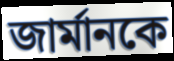
জার্মানকে